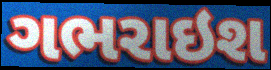
ગભરાઇશ